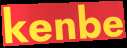
kenbe